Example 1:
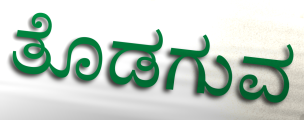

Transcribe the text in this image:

ತೊಡಗುವ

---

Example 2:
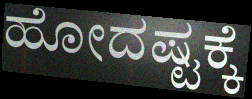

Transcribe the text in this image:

ಹೋದಷ್ಟಕ್ಕೆ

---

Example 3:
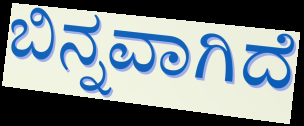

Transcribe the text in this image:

ಬಿನ್ನವಾಗಿದೆ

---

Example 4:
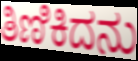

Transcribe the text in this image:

ತಿಣಿಕಿದನು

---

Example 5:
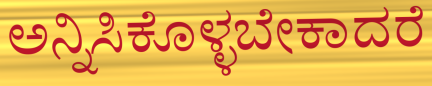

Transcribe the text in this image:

ಅನ್ನಿಸಿಕೊಳ್ಳಬೇಕಾದರೆ